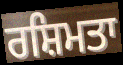
ਰਸ਼ਿਮਤਾ